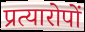
प्रत्यारोपों